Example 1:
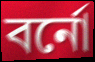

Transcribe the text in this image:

বর্নো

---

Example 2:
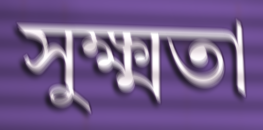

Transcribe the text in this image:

সুক্ষ্মতা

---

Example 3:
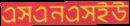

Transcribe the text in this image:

এসএনএসইউ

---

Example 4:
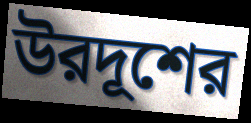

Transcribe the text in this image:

উরদূশের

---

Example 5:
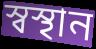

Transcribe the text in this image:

স্বস্থান